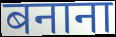
बनाना